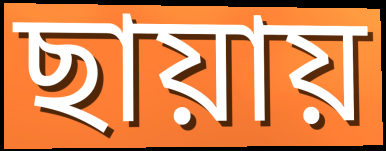
ছায়ায়